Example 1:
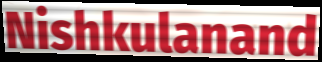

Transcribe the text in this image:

Nishkulanand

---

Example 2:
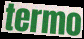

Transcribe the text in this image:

termo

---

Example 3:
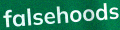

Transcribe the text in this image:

falsehoods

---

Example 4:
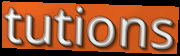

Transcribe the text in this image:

tutions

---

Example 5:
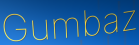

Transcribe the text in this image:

Gumbaz